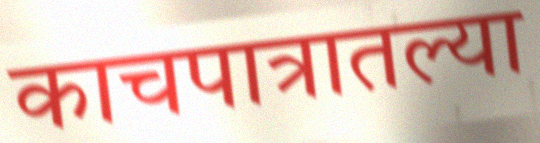
काचपात्रातल्या